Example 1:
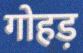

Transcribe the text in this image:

गोहड़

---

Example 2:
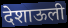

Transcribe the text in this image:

देशाऊली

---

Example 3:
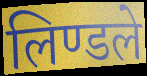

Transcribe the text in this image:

लिण्डले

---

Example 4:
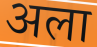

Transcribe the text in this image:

अला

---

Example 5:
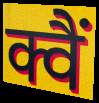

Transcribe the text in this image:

क्वैं